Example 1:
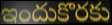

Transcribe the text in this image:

ఇందుకొరకు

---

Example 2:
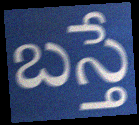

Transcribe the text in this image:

బస్తే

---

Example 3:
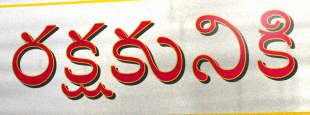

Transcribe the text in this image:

రక్షకునికి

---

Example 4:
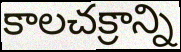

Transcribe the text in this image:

కాలచక్రాన్ని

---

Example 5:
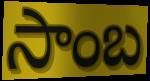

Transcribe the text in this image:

సాంబ